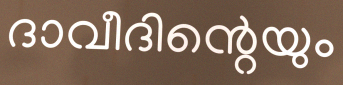
ദാവീദിന്റെയും